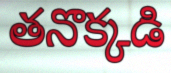
తనొక్కడి